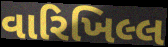
વારિખિલ્લ